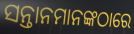
ସନ୍ତାନମାନଙ୍କଠାରେ